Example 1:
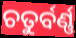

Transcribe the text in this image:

ଚତୁର୍ବର୍ଣ୍ଣ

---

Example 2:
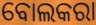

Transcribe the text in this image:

ବୋଲକରା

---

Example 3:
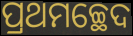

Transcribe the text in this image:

ପ୍ରଥମଚ୍ଛେଦ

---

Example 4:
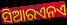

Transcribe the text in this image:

ସିଆରଏନଏ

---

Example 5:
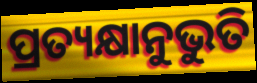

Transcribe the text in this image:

ପ୍ରତ୍ୟକ୍ଷାନୁଭୁତି